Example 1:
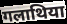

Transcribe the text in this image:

गलाथिया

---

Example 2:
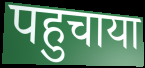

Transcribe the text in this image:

पहुचाया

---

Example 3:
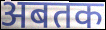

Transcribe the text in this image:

अबतक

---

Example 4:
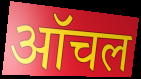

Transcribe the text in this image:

ऑचल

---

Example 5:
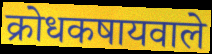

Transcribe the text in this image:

क्रोधकषायवाले